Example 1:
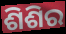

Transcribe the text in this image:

ଶିଶିର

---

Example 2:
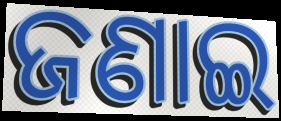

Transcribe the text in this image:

ଜଣାଇ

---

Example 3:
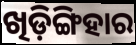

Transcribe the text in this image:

ଖିଡ଼ିଙ୍ଗିହାର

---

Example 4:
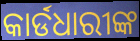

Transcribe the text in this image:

କାର୍ଡଧାରୀଙ୍କ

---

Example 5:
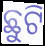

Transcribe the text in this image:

ଛୁଟି